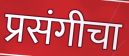
प्रसंगीचा